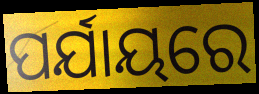
ପର୍ଯାୟରେ